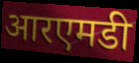
आरएमडी